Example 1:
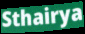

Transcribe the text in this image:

Sthairya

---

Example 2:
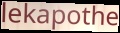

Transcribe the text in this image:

lekapothe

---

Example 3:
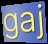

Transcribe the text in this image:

gaj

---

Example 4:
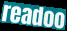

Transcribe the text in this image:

readoo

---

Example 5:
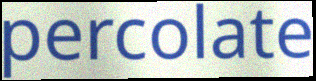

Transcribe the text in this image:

percolate